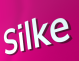
Silke